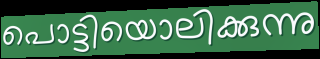
പൊട്ടിയൊലിക്കുന്നു